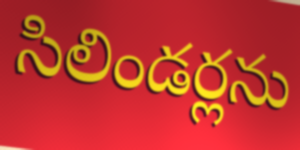
సిలిండర్లను